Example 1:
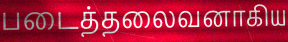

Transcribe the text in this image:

படைத்தலைவனாகிய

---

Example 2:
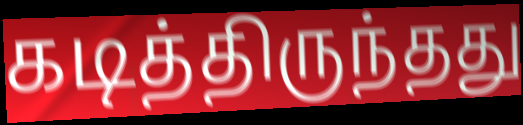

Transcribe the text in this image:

கடித்திருந்தது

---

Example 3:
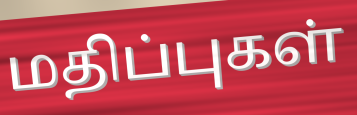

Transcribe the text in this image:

மதிப்புகள்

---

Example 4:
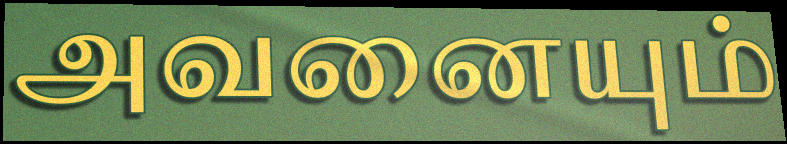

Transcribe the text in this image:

அவனையும்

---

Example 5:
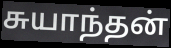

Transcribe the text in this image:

சுயாந்தன்